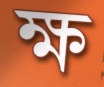
ক্ষ